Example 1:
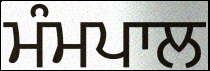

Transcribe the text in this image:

ਮੰਮਪਾਲ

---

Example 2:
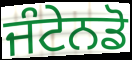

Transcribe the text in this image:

ਜੰਟੇਨਡੋ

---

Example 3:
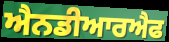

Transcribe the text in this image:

ਐਨਡੀਆਰਐਫ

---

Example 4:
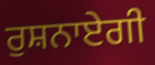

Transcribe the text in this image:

ਰੁਸ਼ਨਾਏਗੀ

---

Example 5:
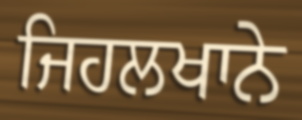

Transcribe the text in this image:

ਜਿਹਲਖਾਨੇ